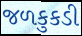
જળકુકડી